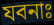
যবনাঃ